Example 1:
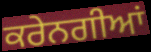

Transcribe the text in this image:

ਕਰੇਨਗੀਆਂ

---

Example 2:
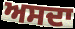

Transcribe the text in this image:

ਅਸਦਾ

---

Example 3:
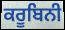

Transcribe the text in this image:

ਕਰੂਬਿਨੀ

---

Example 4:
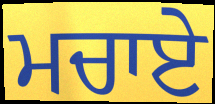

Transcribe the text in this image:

ਮਚਾਏ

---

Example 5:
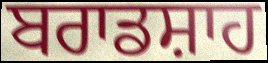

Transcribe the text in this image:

ਬਰਾਡਸ਼ਾਹ